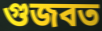
গুজবত